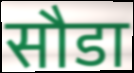
सौडा